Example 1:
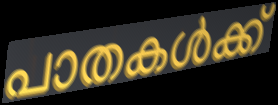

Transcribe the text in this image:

പാതകൾക്ക്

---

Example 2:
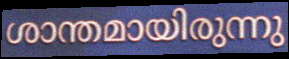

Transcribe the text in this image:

ശാന്തമായിരുന്നു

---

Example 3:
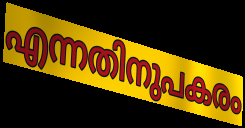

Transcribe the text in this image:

എന്നതിനുപകരം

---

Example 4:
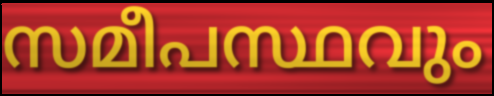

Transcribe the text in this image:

സമീപസ്ഥവും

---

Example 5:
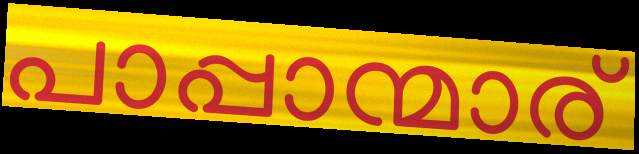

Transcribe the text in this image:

പാപ്പാന്മാര്